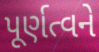
પૂર્ણત્વને